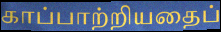
காப்பாற்றியதைப்